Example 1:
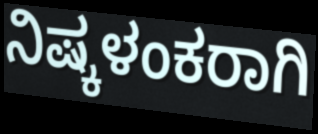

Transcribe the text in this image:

ನಿಷ್ಕಳಂಕರಾಗಿ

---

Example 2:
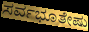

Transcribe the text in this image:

ಸರ್ವಭೂತೇಷು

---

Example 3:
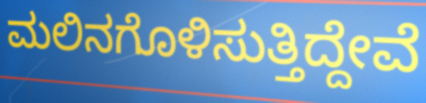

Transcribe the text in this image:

ಮಲಿನಗೊಳಿಸುತ್ತಿದ್ದೇವೆ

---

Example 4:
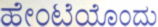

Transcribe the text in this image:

ಹೇಂಟೆಯೊಂದು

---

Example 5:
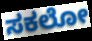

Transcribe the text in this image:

ಸಕಲೋ